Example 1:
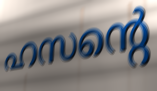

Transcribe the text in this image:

ഹസന്റെ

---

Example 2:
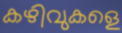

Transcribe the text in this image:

കഴിവുകളെ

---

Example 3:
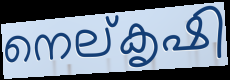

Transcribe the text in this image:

നെല്കൃഷി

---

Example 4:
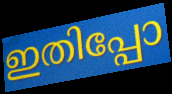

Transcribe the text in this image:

ഇതിപ്പോ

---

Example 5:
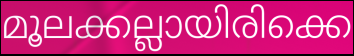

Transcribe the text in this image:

മൂലക്കല്ലായിരിക്കെ